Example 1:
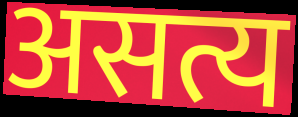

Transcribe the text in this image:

असत्य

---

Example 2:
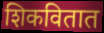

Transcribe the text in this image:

शिकवितात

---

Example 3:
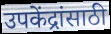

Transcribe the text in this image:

उपकेंद्रांसाठी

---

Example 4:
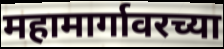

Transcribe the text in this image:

महामार्गावरच्या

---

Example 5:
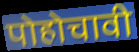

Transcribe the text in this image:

पोहोचावी